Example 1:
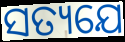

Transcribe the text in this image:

ସତ୍ୟଯେ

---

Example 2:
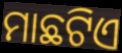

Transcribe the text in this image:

ମାଛଟିଏ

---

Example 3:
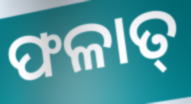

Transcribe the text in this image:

ଫଳାତ୍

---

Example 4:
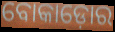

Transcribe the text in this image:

ବୋକାଡ଼ୋର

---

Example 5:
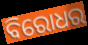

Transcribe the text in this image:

ବିରୋଧର